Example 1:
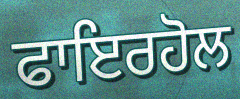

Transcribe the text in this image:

ਫਾਇਰਹੋਲ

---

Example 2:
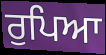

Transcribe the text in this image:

ਰੁਪਿਆ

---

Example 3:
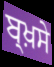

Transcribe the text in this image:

ਬ੍ਖ਼ਸੇ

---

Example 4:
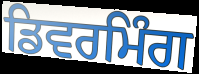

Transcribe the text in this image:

ਡਿਵਰਮਿੰਗ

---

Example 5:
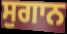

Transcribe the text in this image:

ਸੁਗਾਨ